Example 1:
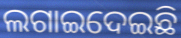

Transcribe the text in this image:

ଲଗାଇଦେଇଛି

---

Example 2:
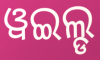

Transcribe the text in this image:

ୱଇଲ୍ଡ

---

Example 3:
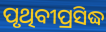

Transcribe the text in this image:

ପୃଥିବୀପ୍ରସିଦ୍ଧ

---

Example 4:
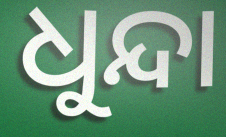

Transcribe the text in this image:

ଧୁନ୍ଦା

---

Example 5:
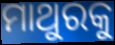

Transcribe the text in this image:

ମାଥୁରକୁ